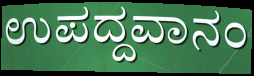
ಉಪದ್ದವಾನಂ